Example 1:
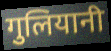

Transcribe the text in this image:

गुलियानी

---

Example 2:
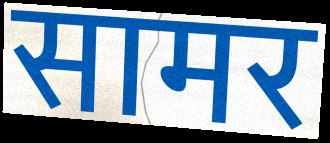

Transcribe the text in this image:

सामर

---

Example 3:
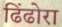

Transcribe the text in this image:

ढिंढोरा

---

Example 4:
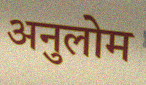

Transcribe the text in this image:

अनुलोम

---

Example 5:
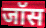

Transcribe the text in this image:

जॉस